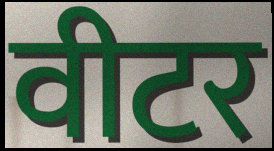
वीटर